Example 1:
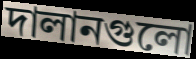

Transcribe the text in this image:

দালানগুলো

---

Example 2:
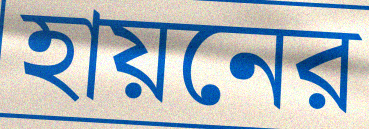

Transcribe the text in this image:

হায়নের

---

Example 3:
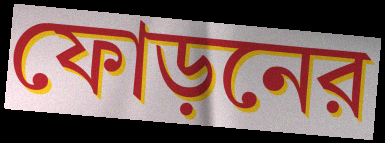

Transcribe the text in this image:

ফোড়নের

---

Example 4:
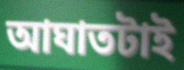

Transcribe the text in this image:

আঘাতটাই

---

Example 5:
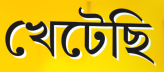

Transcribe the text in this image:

খেটেছি